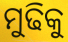
ମୁଢିକୁ